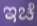
ಇಚೆ